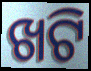
ଖଟି